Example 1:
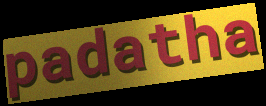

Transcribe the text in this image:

padatha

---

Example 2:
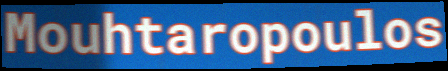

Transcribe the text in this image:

Mouhtaropoulos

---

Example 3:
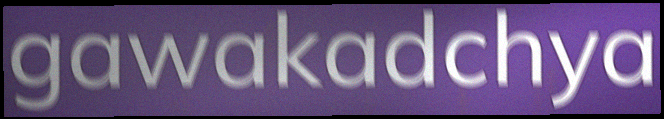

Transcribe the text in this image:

gawakadchya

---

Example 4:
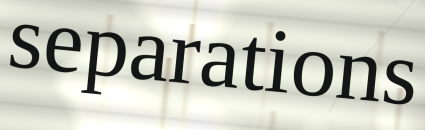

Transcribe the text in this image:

separations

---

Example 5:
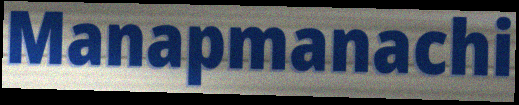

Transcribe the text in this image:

Manapmanachi